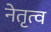
नेतृत्व